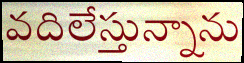
వదిలేస్తున్నాను